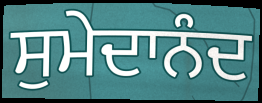
ਸੁਮੇਦਾਨੰਦ